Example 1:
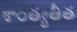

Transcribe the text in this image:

శాంత్యతీత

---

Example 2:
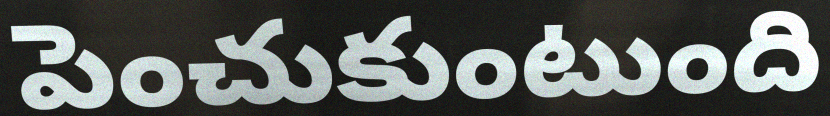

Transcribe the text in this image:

పెంచుకుంటుంది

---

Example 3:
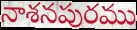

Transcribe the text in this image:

నాశనపురము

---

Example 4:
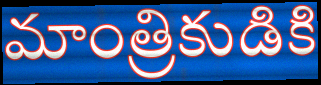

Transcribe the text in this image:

మాంత్రికుడికి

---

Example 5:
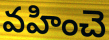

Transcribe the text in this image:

వహించె